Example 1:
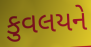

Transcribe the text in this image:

કુવલયને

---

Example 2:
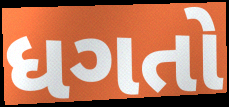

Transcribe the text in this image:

ધગતો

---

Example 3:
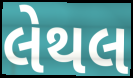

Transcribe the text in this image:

લેથલ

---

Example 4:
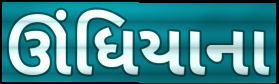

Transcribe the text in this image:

ઊંધિયાના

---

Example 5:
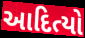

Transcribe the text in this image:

આદિત્યો